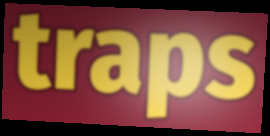
traps